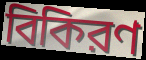
বিকিরণ